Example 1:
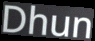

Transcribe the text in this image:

Dhun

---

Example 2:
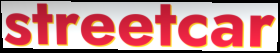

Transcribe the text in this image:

streetcar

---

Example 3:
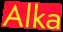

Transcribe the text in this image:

Alka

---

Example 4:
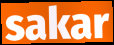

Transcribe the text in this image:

sakar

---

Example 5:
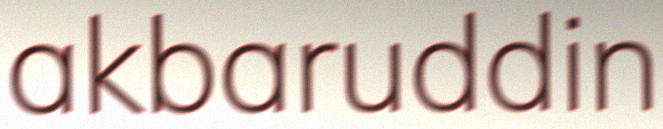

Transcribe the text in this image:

akbaruddin